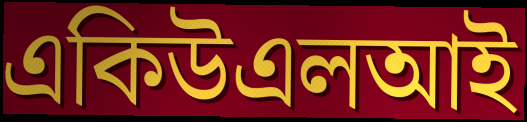
একিউএলআই